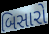
બિસારો